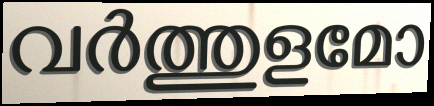
വർത്തുളമോ